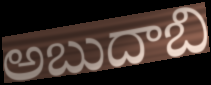
అబుదాబి